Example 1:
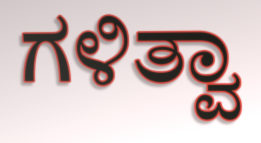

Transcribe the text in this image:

ಗಳಿತ್ವಾ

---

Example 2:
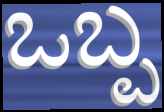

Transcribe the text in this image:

ಒಬ್ಪ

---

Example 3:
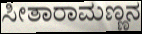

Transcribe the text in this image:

ಸೀತಾರಾಮಣ್ಣನ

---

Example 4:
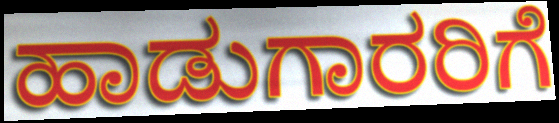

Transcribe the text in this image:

ಹಾಡುಗಾರರಿಗೆ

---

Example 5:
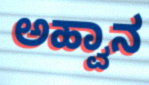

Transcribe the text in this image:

ಅಹ್ವಾನ